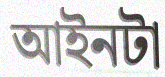
আইনটা